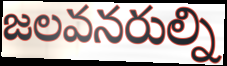
జలవనరుల్ని